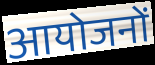
आयोजनों